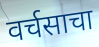
वर्चसाचा